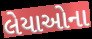
લેયાઓના